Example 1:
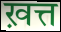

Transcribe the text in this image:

ख़त्त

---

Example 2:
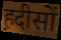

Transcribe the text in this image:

ह़दीसों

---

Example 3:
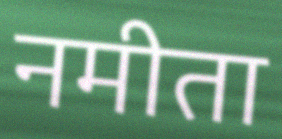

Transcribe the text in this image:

नमीता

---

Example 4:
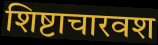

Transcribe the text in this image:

शिष्टाचारवश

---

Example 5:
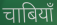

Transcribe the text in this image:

चाबियाँ